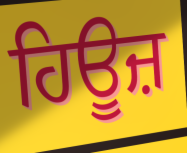
ਹਿਊਜ਼